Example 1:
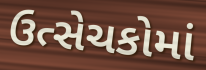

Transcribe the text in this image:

ઉત્સેચકોમાં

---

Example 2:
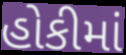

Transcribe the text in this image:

હોકીમાં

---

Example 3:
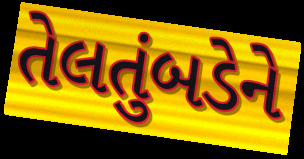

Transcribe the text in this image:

તેલતુંબડેને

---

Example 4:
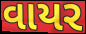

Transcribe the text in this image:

વાયર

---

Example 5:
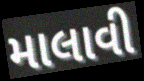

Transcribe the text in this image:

માલાવી